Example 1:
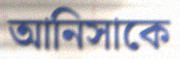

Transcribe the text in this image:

আনিসাকে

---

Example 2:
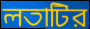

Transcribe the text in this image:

লতাটির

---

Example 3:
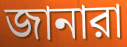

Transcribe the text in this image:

জানারা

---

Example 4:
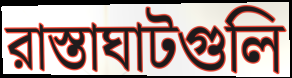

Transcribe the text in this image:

রাস্তাঘাটগুলি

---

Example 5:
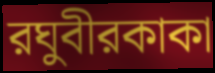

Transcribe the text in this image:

রঘুবীরকাকা